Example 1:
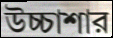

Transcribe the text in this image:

উচ্চাশার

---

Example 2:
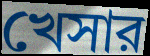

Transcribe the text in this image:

খেসার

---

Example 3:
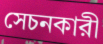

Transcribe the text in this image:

সেচনকারী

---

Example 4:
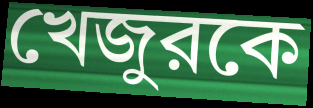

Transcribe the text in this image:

খেজুরকে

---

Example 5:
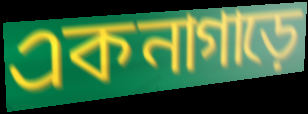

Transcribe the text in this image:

একনাগাড়ে